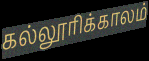
கல்லூரிக்காலம்